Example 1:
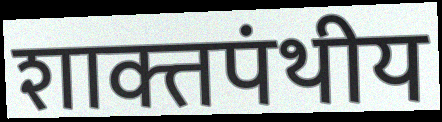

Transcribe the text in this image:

शाक्तपंथीय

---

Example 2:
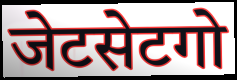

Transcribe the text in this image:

जेटसेटगो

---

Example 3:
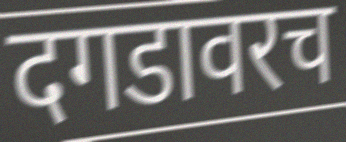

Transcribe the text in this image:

दगडावरच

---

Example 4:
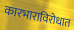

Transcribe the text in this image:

कारभाराविरोधात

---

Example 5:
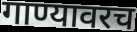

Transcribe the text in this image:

गाण्यावरच